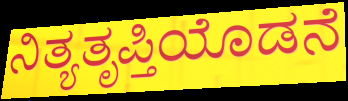
ನಿತ್ಯತೃಪ್ತಿಯೊಡನೆ